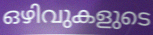
ഒഴിവുകളുടെ